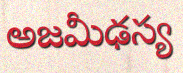
అజమీఢస్య